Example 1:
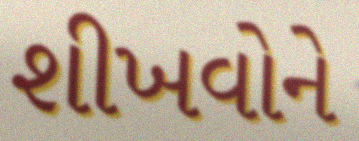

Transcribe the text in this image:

શીખવોને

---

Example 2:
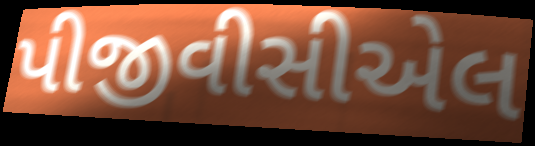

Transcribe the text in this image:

પીજીવીસીએલ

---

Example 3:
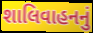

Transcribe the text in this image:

શાલિવાહનનું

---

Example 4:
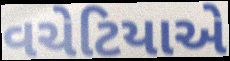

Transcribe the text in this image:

વચેટિયાએ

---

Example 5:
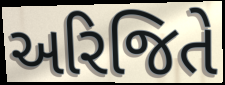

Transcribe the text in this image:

અરિજિતે